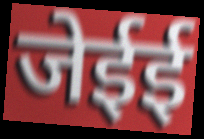
जेईई